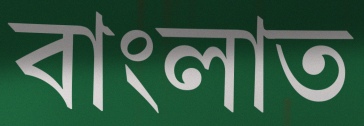
বাংলাত